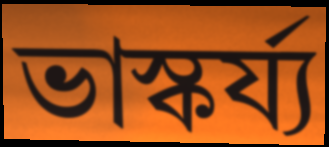
ভাস্কৰ্য্য